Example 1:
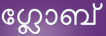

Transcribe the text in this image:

ഗ്ലോബ്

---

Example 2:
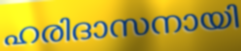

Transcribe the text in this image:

ഹരിദാസനായി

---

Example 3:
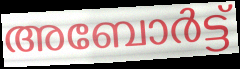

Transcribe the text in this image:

അബോർട്ട്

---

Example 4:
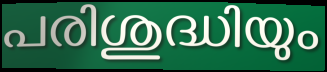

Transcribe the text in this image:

പരിശുദ്ധിയും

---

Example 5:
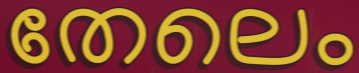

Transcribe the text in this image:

തേലെം